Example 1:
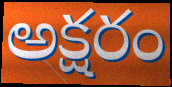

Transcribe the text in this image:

అక్షరం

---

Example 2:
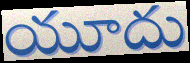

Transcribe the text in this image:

యూదు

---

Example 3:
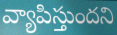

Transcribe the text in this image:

వ్యాపిస్తుందని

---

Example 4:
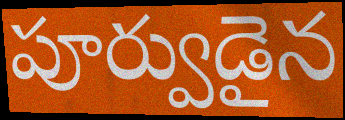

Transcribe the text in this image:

పూర్వుడైన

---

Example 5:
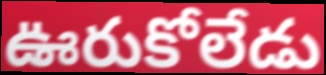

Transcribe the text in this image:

ఊరుకోలేడు